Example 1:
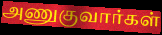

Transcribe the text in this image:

அணுகுவார்கள்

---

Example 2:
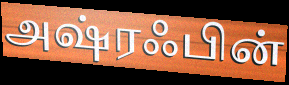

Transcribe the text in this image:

அஷ்ரஃபின்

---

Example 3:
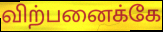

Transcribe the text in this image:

விற்பனைக்கே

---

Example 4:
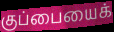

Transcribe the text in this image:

குப்பையைக்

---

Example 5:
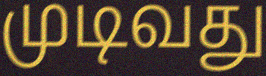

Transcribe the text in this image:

முடிவது